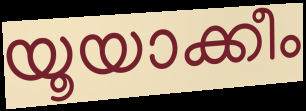
യൂയാക്കീം